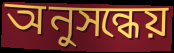
অনুসন্ধেয়